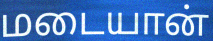
மடையான்